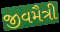
જીવમૈત્રી